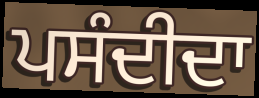
ਪਸੰਦੀਦਾ